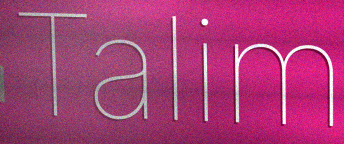
Talim